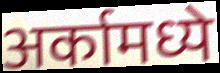
अर्कामध्ये